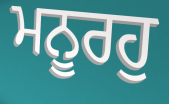
ਮਨੂਰਹੁ